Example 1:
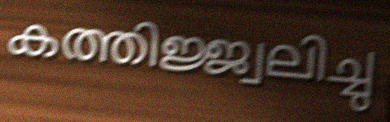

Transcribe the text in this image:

കത്തിജ്ജ്വലിച്ചു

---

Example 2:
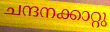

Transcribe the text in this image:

ചന്ദനക്കാറ്റു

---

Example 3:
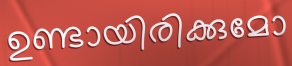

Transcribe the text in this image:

ഉണ്ടായിരിക്കുമോ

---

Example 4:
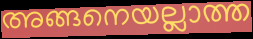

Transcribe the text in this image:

അങ്ങനെയല്ലാത്ത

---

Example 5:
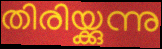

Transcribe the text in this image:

തിരിയ്ക്കുന്നു